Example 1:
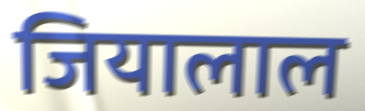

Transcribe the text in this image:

जियालाल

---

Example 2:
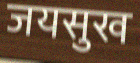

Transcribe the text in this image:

जयसुख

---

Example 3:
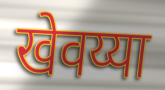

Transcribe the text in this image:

खेवय्या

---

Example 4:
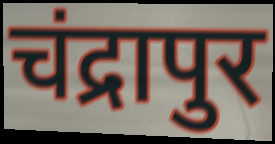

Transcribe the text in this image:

चंद्रापुर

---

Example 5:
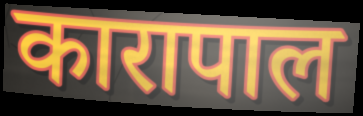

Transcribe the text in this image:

कारापाल